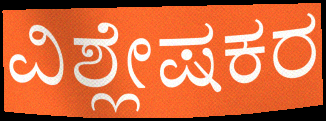
ವಿಶ್ಲೇಷಕರ